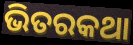
ଭିତରକଥା